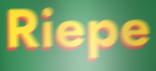
Riepe